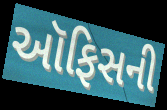
ઑફિસની